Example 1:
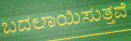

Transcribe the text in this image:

ಬದಲಾಯಿಸುತ್ತವೆ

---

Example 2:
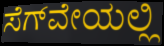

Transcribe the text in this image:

ಸೆಗ್‌ವೇಯಲ್ಲಿ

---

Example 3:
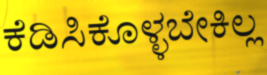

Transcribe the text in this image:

ಕೆಡಿಸಿಕೊಳ್ಳಬೇಕಿಲ್ಲ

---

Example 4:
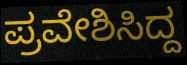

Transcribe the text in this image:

ಪ್ರವೇಶಿಸಿದ್ದ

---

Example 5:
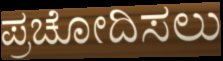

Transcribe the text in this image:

ಪ್ರಚೋದಿಸಲು